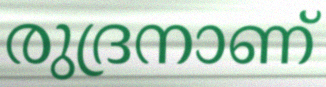
രുദ്രനാണ്